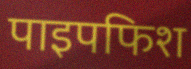
पाइपफिश